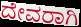
ದೇವರಾಗಿ